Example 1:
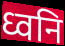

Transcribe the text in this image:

ध्‍वनि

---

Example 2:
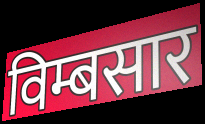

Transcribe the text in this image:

विम्बसार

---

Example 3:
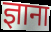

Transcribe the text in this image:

ज्ञाना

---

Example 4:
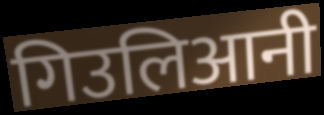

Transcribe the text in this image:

गिउलिआनी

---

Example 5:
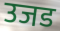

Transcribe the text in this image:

उजड